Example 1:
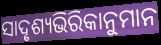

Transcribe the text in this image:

ସାଦୃଶ୍ଯଭିରିକାନୁମାନ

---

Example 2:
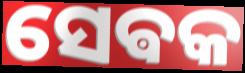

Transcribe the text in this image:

ସେଵକ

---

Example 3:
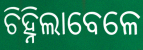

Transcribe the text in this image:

ଚିହ୍ନିଲାବେଳେ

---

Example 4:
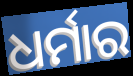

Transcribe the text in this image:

ଧର୍ମାର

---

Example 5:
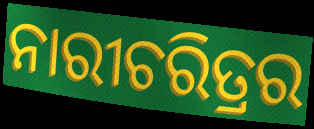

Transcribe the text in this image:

ନାରୀଚରିତ୍ରର